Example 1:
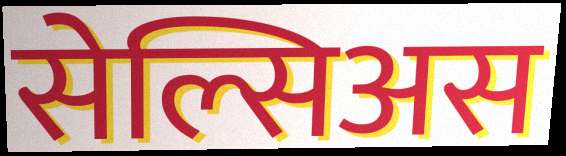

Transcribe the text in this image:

सेल्सिअस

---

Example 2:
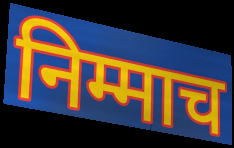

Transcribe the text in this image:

निम्माच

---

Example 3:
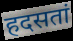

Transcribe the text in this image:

हदसतां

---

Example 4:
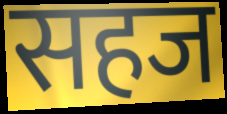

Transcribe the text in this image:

सहज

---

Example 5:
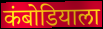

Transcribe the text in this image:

कंबोडियाला